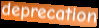
deprecation